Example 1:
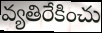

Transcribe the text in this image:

వ్యతిరేకించు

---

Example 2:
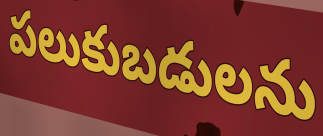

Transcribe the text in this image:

పలుకుబడులను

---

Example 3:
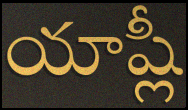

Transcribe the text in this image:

యాష్లీ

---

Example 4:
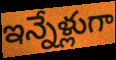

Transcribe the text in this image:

ఇన్నేళ్లుగా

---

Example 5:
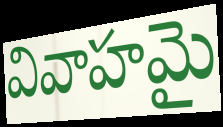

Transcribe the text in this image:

వివాహమై